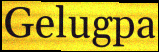
Gelugpa